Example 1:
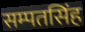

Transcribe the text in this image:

सम्पतसिंह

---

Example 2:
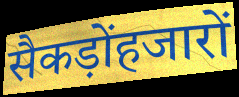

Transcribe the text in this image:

सैकड़ोंहजारों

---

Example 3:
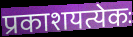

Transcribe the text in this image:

प्रकाशयत्येकः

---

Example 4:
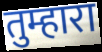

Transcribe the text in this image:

तुम्‍हारा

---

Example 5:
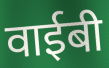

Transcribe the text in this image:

वाईबी